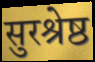
सुरश्रेष्ठ